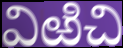
విఱిచి